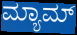
ಮ್ಯಾಮ್